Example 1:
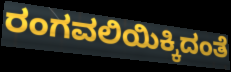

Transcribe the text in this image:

ರಂಗವಲಿಯಿಕ್ಕಿದಂತೆ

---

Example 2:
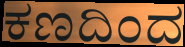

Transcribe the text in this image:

ಕಣದಿಂದ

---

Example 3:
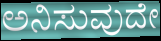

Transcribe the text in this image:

ಅನಿಸುವುದೇ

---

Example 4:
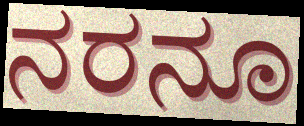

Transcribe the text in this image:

ನರನೂ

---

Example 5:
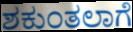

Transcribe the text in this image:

ಶಕುಂತಲಾಗೆ